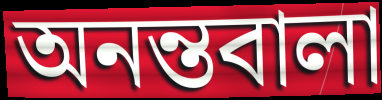
অনন্তবালা